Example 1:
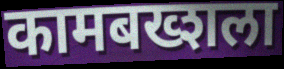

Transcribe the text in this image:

कामबख्शला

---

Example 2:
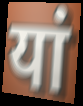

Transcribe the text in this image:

यां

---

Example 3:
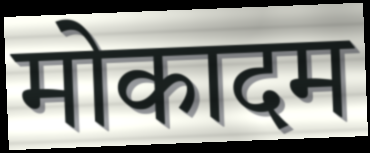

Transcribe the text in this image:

मोकादम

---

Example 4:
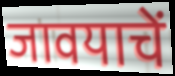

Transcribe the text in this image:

जावयाचें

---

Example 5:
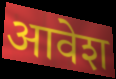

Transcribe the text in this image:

आवेश